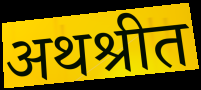
अथश्रीत